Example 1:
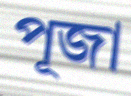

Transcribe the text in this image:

পূজা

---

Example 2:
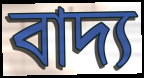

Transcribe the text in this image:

বাদ্য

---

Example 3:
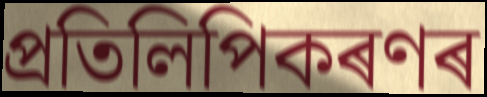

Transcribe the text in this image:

প্ৰতিলিপিকৰণৰ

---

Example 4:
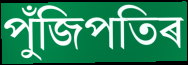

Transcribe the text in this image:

পুঁজিপতিৰ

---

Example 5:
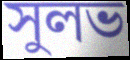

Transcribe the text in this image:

সুলভ